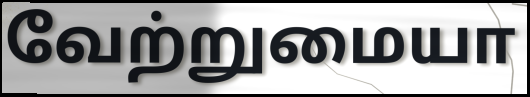
வேற்றுமையா